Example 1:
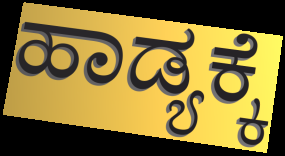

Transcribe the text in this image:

ಹಾಡ್ಯಕ್ಕೆ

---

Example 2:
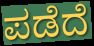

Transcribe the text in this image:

ಪಡೆದೆ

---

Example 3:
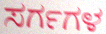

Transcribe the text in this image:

ಸರ್ಗಗಳ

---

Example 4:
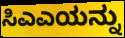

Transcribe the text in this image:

ಸಿಎಎಯನ್ನು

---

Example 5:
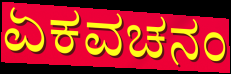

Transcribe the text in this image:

ಏಕವಚನಂ